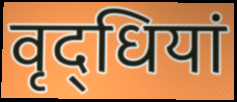
वृद्धियां